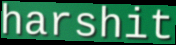
harshit